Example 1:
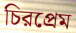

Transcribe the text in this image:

চিরপ্রেম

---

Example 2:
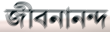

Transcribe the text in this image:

জীবনানন্দ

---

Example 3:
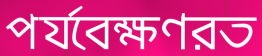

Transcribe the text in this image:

পর্যবেক্ষণরত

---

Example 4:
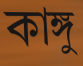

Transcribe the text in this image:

কাঙ্গু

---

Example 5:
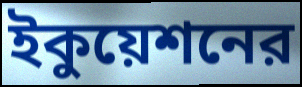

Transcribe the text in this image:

ইকুয়েশনের